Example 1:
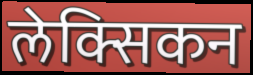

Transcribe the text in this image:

लेक्सिकन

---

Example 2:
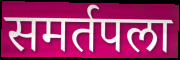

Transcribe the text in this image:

समर्तपला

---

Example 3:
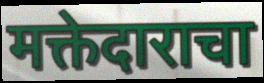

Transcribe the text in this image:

मक्तेदाराचा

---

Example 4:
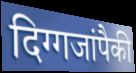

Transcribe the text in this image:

दिग्गजांपैकी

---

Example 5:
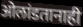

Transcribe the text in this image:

ओलांडतानाही